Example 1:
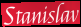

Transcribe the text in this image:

Stanislav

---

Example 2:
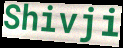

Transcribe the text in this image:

Shivji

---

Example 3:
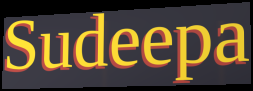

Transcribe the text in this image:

Sudeepa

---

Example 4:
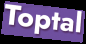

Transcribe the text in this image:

Toptal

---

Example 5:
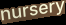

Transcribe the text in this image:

nursery